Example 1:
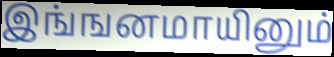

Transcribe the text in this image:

இங்ஙனமாயினும்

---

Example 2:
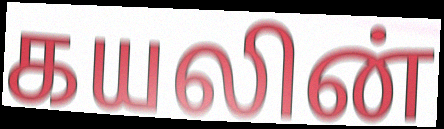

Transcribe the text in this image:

கயலின்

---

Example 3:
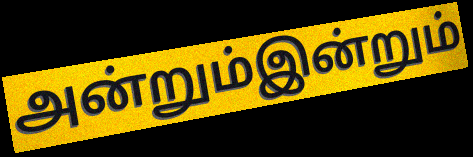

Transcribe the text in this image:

அன்றும்இன்றும்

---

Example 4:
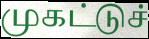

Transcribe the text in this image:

முகட்டுச்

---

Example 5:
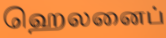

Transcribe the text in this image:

ஹெலனைப்